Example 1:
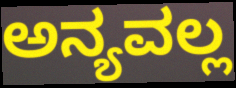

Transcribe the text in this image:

ಅನ್ಯವಲ್ಲ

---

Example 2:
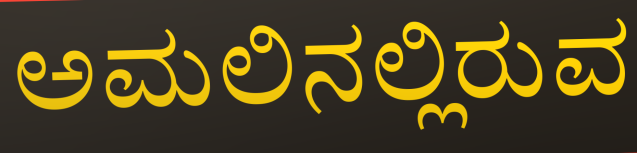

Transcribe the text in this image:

ಅಮಲಿನಲ್ಲಿರುವ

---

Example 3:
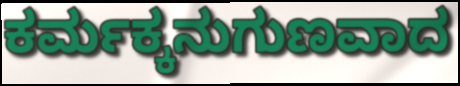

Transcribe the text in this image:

ಕರ್ಮಕ್ಕನುಗುಣವಾದ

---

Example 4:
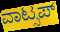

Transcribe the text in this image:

ವಾಟ್ಸಪ್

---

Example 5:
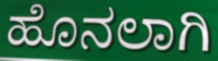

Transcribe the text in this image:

ಹೊನಲಾಗಿ